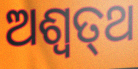
ଅଶ୍ଵତ୍‌ଥ